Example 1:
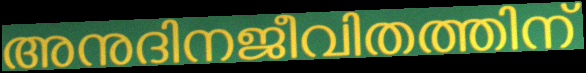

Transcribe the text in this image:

അനുദിനജീവിതത്തിന്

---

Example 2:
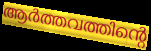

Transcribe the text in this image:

ആർത്തവത്തിന്റെ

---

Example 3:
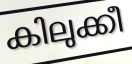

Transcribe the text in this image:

കിലുക്കീ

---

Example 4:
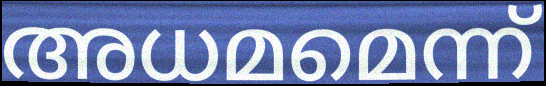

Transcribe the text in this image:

അധമമെന്ന്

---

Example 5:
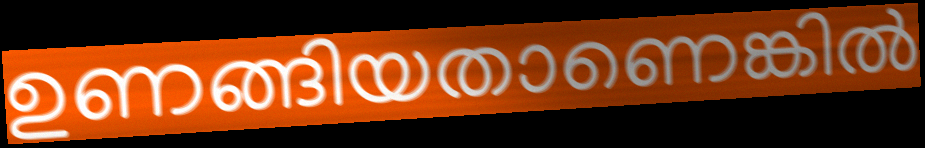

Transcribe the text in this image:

ഉണങ്ങിയതാണെങ്കിൽ